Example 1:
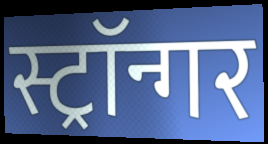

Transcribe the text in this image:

स्ट्रॉन्गर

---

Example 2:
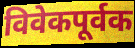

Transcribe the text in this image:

विवेकपूर्वक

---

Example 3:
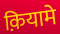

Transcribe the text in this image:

क़ियामे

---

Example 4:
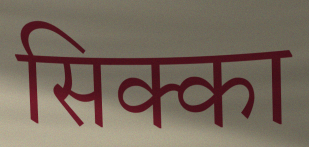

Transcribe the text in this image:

सिक्का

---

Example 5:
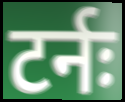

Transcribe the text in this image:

टर्नः